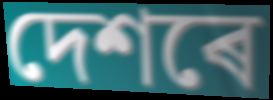
দেশৰে